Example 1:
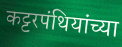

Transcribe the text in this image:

कट्टरपंथियांच्या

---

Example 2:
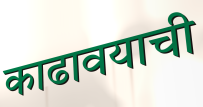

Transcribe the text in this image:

काढावयाची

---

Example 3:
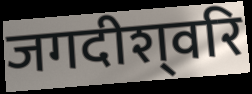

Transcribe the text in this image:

जगदीश्वरि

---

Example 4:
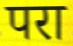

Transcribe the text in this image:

परा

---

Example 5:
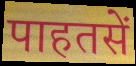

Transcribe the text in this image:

पाहतसें